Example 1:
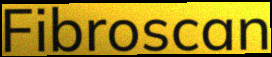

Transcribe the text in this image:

Fibroscan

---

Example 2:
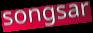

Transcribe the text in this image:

songsar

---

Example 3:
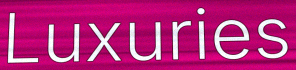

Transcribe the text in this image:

Luxuries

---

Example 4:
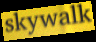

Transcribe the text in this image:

skywalk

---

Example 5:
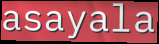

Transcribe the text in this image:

asayala